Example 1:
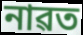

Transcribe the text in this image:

নাৱত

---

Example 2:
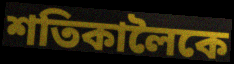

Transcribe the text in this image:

শতিকালৈকে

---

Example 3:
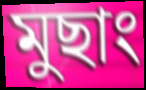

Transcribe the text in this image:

মুছাং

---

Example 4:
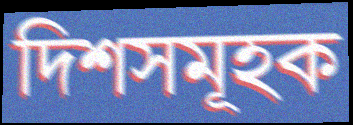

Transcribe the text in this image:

দিশসমূহক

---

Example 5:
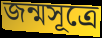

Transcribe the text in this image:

জন্মসূত্ৰে